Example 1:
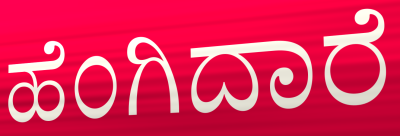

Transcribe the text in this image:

ಹೆಂಗಿದಾರೆ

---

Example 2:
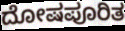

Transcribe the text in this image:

ದೋಷಪೂರಿತ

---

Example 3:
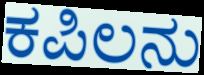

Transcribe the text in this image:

ಕಪಿಲನು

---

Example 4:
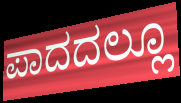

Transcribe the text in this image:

ಪಾದದಲ್ಲೂ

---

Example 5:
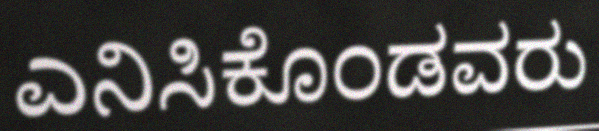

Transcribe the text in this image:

ಎನಿಸಿಕೊಂಡವರು